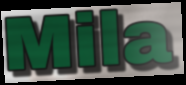
Mila